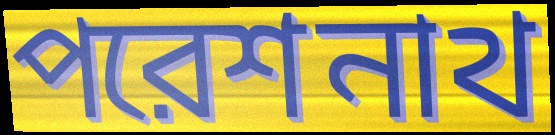
পরেশনাথ